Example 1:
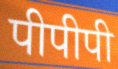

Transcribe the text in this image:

पीपीपी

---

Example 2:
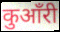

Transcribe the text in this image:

कुआँरी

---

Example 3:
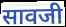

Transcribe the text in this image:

सावजी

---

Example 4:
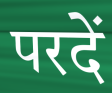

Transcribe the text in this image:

परदें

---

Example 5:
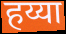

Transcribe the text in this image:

हय्या